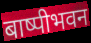
बाष्पीभवन